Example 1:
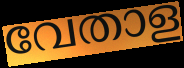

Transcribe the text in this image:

വേതാള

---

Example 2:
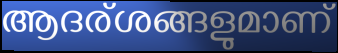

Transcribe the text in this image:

ആദര്ശങ്ങളുമാണ്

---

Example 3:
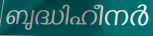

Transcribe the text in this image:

ബുദ്ധിഹീനർ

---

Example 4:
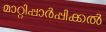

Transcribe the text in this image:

മാറ്റിപ്പാർപ്പിക്കൽ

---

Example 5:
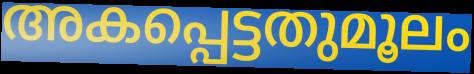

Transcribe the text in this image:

അകപ്പെട്ടതുമൂലം